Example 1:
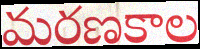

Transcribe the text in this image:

మరణకాల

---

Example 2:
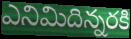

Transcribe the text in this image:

ఎనిమిదిన్నరకి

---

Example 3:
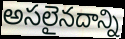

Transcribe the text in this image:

అసలైనదాన్ని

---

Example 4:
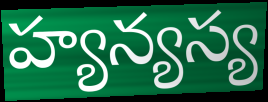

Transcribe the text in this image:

హ్యన్యస్య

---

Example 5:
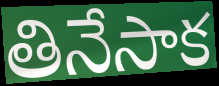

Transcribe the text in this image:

తినేసాక